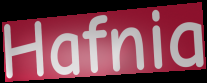
Hafnia